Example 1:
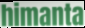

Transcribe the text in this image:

himanta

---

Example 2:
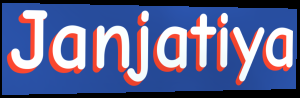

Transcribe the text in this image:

Janjatiya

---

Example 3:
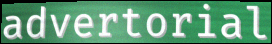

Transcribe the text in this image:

advertorial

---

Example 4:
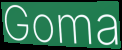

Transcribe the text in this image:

Goma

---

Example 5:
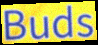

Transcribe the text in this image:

Buds